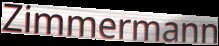
Zimmermann